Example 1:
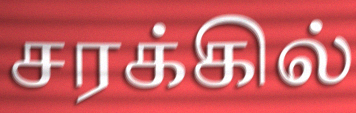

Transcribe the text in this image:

சரக்கில்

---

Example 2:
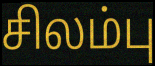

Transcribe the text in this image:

சிலம்பு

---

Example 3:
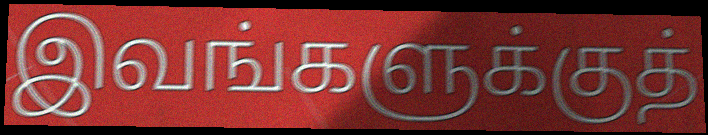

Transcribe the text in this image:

இவங்களுக்குத்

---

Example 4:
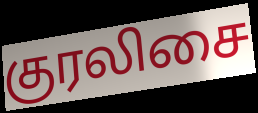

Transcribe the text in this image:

குரலிசை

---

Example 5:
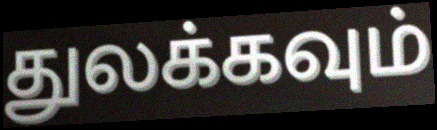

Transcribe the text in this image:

துலக்கவும்